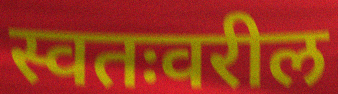
स्वतःवरील